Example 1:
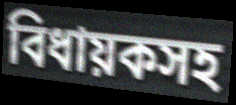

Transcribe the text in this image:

বিধায়কসহ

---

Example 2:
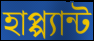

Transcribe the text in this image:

হাপ্প্যান্ট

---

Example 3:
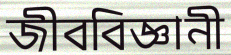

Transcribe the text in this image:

জীববিজ্ঞানী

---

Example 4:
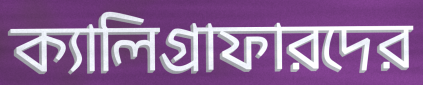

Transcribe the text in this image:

ক্যালিগ্রাফারদের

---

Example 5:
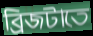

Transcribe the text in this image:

ব্রিজটাতে